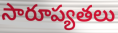
సారూప్యతలు